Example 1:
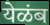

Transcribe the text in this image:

येळंब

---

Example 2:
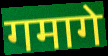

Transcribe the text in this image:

गमागे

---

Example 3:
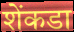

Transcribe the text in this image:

शेंकडा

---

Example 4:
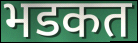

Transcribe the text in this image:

भडकत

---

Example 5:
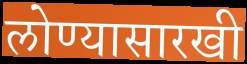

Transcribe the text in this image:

लोण्यासारखी